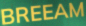
BREEAM